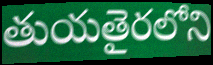
తుయతైరలోని